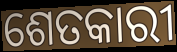
ଶେତକାରୀ